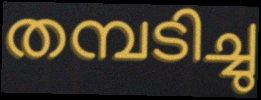
തമ്പടിച്ചു